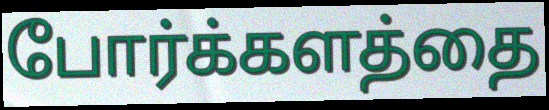
போர்க்களத்தை